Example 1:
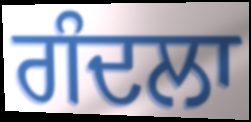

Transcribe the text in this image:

ਗੰਦਲਾ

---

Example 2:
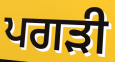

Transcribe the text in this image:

ਪਗੜੀ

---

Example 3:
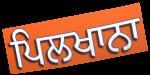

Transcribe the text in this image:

ਪਿਲਖਾਨਾ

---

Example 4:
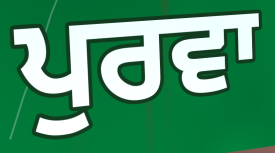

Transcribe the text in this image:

ਪੁਰਵਾ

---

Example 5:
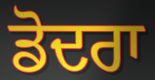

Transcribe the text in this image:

ਡੋਦਰਾ